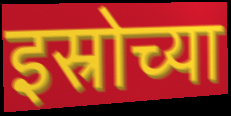
इस्रोच्या